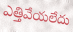
ఎత్తివేయలేదు